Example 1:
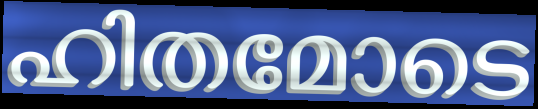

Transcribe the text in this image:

ഹിതമോടെ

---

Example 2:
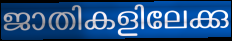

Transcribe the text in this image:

ജാതികളിലേക്കു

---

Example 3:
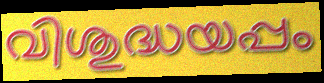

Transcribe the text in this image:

വിശുദ്ധയപ്പം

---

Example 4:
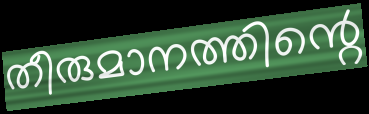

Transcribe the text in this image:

തീരുമാനത്തിന്റെ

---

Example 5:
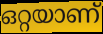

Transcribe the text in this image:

ഒറ്റയാണ്